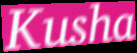
Kusha